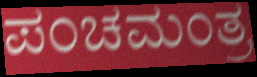
ಪಂಚಮಂತ್ರ